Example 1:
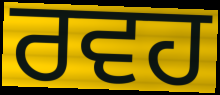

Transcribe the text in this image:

ਰਵਹ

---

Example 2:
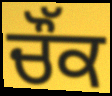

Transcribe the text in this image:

ਚੌੱਕ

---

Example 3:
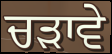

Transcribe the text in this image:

ਚੜਾਵੇ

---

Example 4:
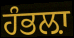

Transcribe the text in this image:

ਹੰਭਲ਼ਾ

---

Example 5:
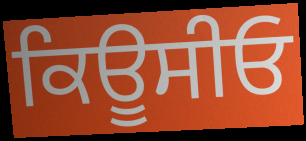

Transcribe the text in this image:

ਕਿਊਸੀਓ